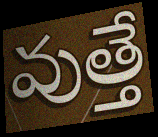
వుత్తే